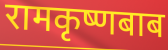
रामकृष्णबाब